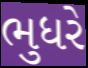
ભુધરે